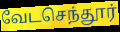
வேடசெந்தூர்